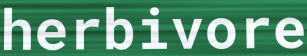
herbivore